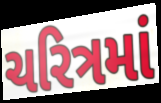
ચરિત્રમાં